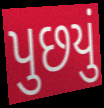
પુછયું